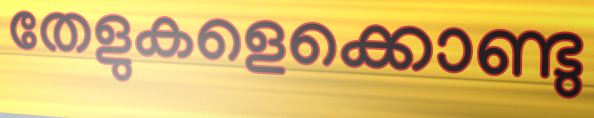
തേളുകളെക്കൊണ്ടു